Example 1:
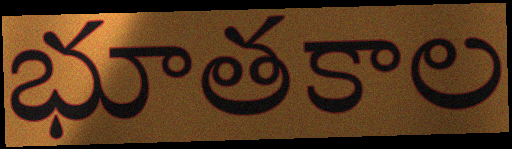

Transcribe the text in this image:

భూతకాల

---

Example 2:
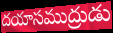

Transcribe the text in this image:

దయాసముద్రుడు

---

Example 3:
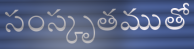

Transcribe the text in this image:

సంస్కృతముతో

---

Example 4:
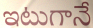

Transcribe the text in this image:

ఇటుగానే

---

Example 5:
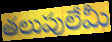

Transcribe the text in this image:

తలుపులేమీ